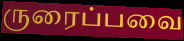
ருரைப்பவை